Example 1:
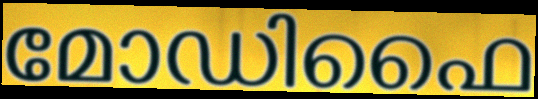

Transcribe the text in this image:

മോഡിഫൈ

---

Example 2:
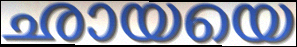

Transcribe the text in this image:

ഛായയെ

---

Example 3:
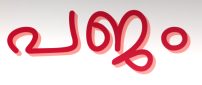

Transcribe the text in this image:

പജം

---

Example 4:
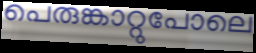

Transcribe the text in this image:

പെരുങ്കാറ്റുപോലെ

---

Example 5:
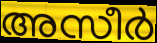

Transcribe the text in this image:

അസീർ